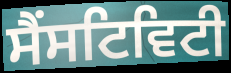
ਸੈਂਸਟਿਵਿਟੀ